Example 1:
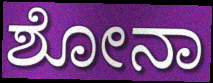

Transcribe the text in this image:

ಶೋನಾ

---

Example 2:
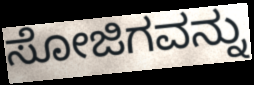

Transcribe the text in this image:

ಸೋಜಿಗವನ್ನು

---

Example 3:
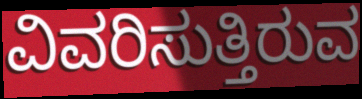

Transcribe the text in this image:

ವಿವರಿಸುತ್ತಿರುವ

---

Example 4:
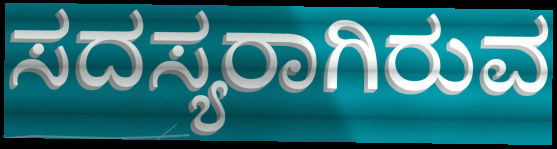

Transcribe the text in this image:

ಸದಸ್ಯರಾಗಿರುವ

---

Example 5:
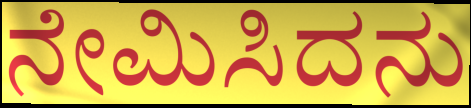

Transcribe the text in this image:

ನೇಮಿಸಿದನು